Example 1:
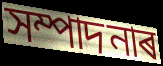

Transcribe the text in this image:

সম্পাদনাৰ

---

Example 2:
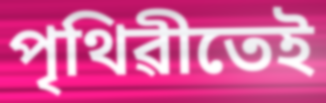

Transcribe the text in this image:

পৃথিৱীতেই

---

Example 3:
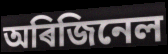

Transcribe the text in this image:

অৰিজিনেল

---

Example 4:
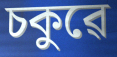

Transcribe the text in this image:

চকুৱে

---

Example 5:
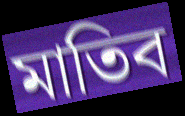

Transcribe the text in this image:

মাতিব